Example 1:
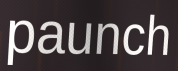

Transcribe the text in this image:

paunch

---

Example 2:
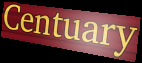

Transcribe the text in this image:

Centuary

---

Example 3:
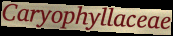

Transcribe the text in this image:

Caryophyllaceae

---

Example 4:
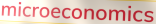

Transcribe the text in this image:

microeconomics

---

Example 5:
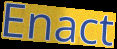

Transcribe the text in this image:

Enact